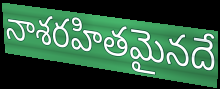
నాశరహితమైనదే